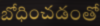
బోధించడంతో